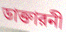
ডাক্তারনী